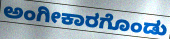
ಅಂಗೀಕಾರಗೊಂಡು